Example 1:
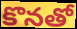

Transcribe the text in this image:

కొనతో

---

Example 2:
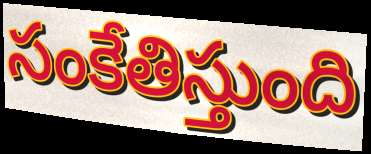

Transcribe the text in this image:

సంకేతిస్తుంది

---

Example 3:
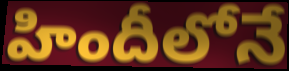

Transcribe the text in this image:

హిందీలోనే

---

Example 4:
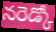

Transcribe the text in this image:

నరెడ్కో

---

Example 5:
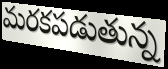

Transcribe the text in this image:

మరకపడుతున్న